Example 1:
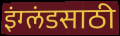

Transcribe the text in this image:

इंग्लंडसाठी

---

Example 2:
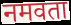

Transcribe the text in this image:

नमवता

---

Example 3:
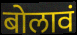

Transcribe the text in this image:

बोलावं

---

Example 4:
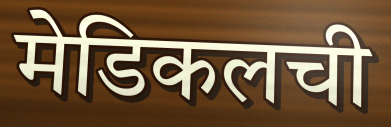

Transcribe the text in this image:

मेडिकलची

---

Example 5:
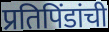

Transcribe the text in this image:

प्रतिपिंडांची